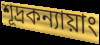
শূদ্রকন্যায়াং